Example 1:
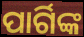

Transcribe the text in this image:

ପାର୍ଗିଙ୍କ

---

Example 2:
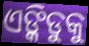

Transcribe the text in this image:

ଏଙ୍କିଡୁକୁ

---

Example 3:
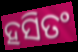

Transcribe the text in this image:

ହସିତଂ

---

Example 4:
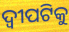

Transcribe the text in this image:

ଦ୍ୱୀପଟିକୁ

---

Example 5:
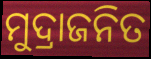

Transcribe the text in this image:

ମୁଦ୍ରାଜନିତ